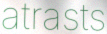
atrasts